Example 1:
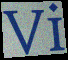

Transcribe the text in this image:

Vi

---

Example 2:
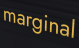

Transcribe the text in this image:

marginal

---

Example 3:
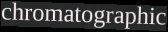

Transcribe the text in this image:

chromatographic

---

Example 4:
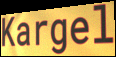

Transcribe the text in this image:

Kargel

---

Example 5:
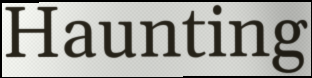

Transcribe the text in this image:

Haunting